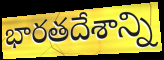
భారతదేశాన్ని